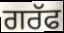
ਗਰੱਫ